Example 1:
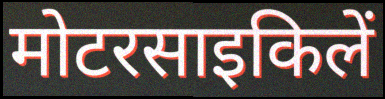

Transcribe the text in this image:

मोटरसाइकिलें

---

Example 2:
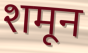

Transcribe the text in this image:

शमून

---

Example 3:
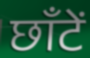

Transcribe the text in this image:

छाँटें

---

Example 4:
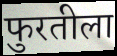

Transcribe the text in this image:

फुरतीला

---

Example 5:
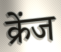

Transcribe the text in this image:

क्रेंज